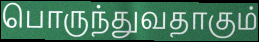
பொருந்துவதாகும்